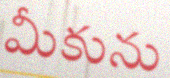
మీకును